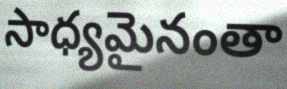
సాధ్యమైనంతా